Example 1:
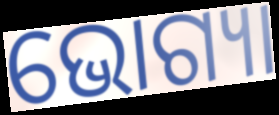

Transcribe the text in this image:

ଭୋଗ୍ୟା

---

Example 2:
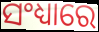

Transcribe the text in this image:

ସଂଧ୍ଯାରେ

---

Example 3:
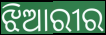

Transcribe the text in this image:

ଝିଆରୀର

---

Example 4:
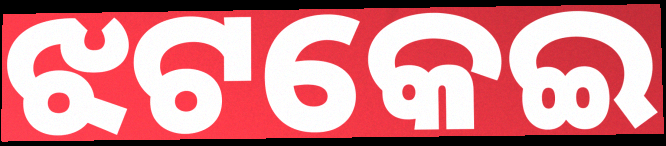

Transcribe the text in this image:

ଝଟକେଇ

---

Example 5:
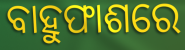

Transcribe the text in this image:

ବାହୁଫାଶରେ